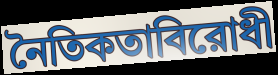
নৈতিকতাবিরোধী